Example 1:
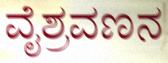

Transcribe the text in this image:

ವೈಶ್ರವಣನ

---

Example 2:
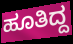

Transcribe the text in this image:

ಹೂತಿದ್ದ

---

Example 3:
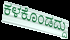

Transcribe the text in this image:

ಕಳಕೊಂಡದ್ದು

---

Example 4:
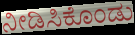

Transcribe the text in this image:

ನೀಡಿಸಿಕೊಂಡು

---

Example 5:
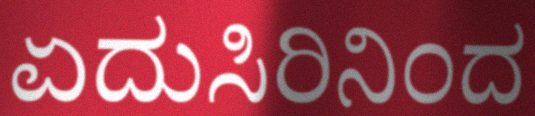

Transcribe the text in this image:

ಏದುಸಿರಿನಿಂದ